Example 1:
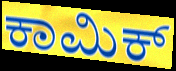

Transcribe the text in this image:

ಕಾಮಿಕ್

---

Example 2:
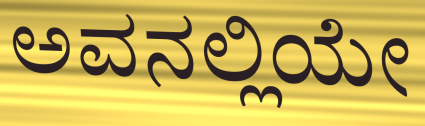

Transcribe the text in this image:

ಅವನಲ್ಲಿಯೇ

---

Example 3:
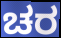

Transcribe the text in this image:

ಚರ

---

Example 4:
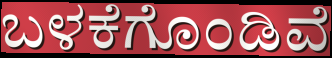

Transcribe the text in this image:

ಬಳಕೆಗೊಂಡಿವೆ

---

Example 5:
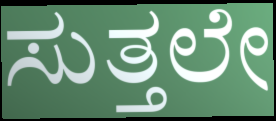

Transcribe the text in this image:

ಸುತ್ತಲೇ